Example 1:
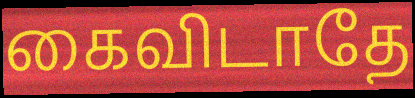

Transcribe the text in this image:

கைவிடாதே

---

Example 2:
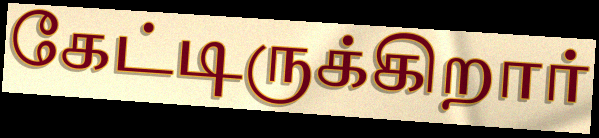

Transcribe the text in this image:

கேட்டிருக்கிறார்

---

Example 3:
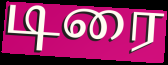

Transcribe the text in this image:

டிரை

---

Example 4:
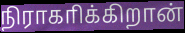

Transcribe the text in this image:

நிராகரிக்கிறான்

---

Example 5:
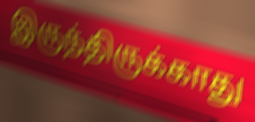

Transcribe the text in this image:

இருந்திருக்காது